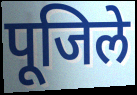
पूजिले